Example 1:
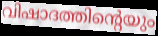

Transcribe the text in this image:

വിഷാദത്തിന്റെയും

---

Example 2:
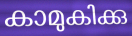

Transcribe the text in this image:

കാമുകിക്കു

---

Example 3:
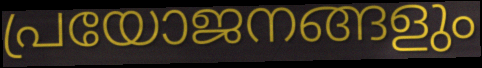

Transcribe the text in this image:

പ്രയോജനങ്ങളും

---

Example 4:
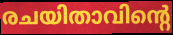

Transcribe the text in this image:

രചയിതാവിന്റെ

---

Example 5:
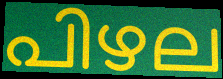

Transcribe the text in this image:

പിഴല